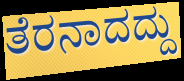
ತೆರನಾದದ್ದು